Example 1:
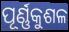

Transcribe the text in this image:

ପୂର୍ଣ୍ଣକୁଶଳ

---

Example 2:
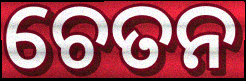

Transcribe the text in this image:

ଚେତନ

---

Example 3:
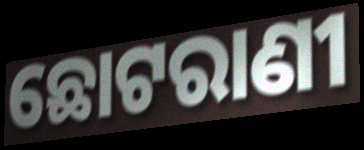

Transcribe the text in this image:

ଛୋଟରାଣୀ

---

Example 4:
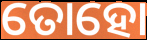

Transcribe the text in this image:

ତୋହୋ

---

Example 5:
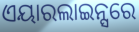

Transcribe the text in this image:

ଏୟାରଲାଇନ୍ସରେ